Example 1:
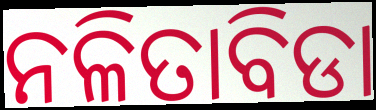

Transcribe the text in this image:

ନଳିତାବିଡା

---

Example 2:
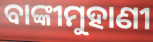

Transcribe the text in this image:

ବାଙ୍କୀମୁହାଣୀ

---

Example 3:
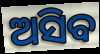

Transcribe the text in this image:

ଅସିବ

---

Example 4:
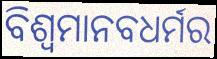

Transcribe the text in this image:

ବିଶ୍ବମାନବଧର୍ମର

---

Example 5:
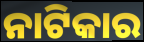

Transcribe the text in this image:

ନାଟିକାର